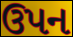
ઉપન